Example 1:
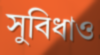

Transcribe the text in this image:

সুবিধাও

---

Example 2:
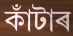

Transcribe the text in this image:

কাঁটাৰ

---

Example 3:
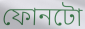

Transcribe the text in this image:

ফোনটো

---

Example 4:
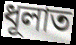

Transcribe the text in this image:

ধূলাত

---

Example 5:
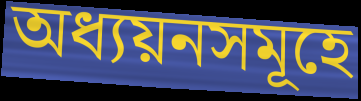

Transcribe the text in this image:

অধ্যয়নসমূহে